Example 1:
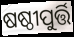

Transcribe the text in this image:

ଷଷ୍ଠୀପୁର୍ତ୍ତି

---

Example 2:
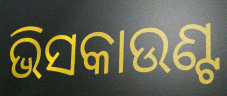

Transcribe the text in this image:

ଭିସକାଉଣ୍ଟ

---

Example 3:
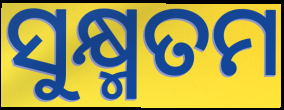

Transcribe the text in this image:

ସୁକ୍ଷ୍ମତମ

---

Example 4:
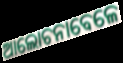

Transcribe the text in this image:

ଆଲୋଚନାବେଳେ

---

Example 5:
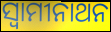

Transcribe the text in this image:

ସ୍ୱାମୀନାଥନ